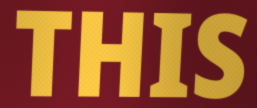
THIS